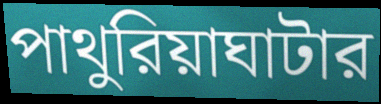
পাথুরিয়াঘাটার